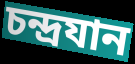
চন্দ্রযান